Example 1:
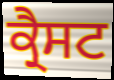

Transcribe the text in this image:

ਕ੍ਰੈਸਟ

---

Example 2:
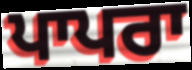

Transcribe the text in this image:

ਪਾਪਰਾ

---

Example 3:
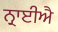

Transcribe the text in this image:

ਨ੍ਰਾਈਐ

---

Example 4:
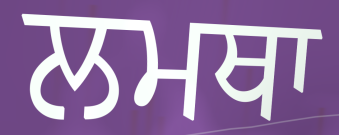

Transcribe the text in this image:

ਲਮਥਾ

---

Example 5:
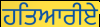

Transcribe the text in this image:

ਹਤਿਆਰੀਏ